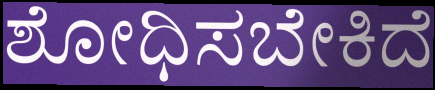
ಶೋಧಿಸಬೇಕಿದೆ